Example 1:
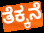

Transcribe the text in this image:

ತೆಕ್ಕನೆ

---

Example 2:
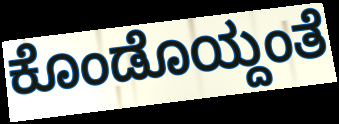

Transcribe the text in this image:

ಕೊಂಡೊಯ್ದಂತೆ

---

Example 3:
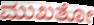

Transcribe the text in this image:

ಮುಖತೋ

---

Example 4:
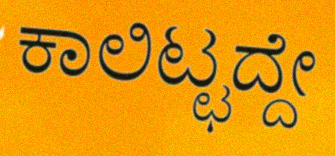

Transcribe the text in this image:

ಕಾಲಿಟ್ಟದ್ದೇ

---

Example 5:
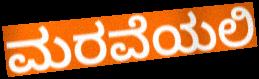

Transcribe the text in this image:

ಮರವೆಯಲಿ